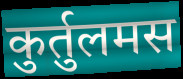
कुर्तुलमस